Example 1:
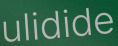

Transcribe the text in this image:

ulidide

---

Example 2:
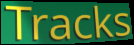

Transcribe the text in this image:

Tracks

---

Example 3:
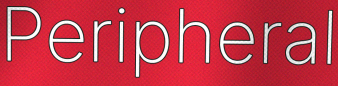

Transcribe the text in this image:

Peripheral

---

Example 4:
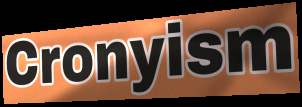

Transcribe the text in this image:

Cronyism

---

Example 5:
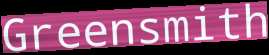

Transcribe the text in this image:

Greensmith